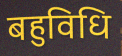
बहुविधि